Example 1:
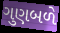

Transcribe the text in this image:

ગુણબળે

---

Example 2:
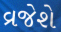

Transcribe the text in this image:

વ્રજેશે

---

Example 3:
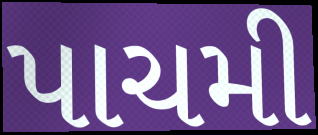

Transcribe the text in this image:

પાચમી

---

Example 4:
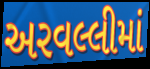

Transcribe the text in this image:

અરવલ્લીમાં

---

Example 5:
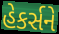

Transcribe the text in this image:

હેકર્સને